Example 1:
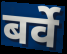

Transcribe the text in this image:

बर्वे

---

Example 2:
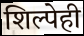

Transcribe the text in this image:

शिल्पेही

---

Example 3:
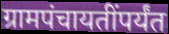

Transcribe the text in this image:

ग्रामपंचायतींपर्यंत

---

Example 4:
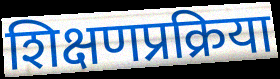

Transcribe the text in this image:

शिक्षणप्रक्रिया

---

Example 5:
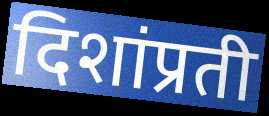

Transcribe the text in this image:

दिशांप्रती